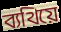
ব্যথিয়ে